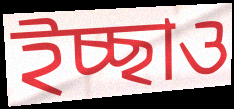
ইচ্ছাও